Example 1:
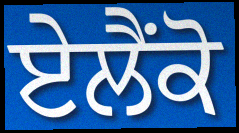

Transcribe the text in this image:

ਏਲੈਂਕੋ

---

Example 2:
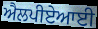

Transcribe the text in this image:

ਐਲਪੀਏਆਈ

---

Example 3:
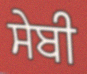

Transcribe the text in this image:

ਸੇਬੀ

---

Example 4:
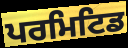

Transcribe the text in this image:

ਪਰਮਿਟਿਡ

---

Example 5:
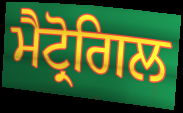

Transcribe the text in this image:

ਮੈਟ੍ਰੋਗਿਲ